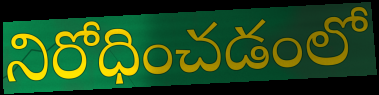
నిరోధించడంలో